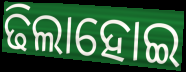
ଢିଲାହୋଇ